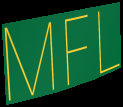
MFL